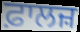
ਫ਼ਾਲਜ਼